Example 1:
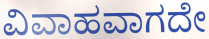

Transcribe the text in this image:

ವಿವಾಹವಾಗದೇ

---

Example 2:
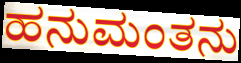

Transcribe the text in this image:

ಹನುಮಂತನು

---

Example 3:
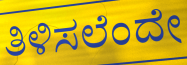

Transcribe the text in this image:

ತಿಳಿಸಲೆಂದೇ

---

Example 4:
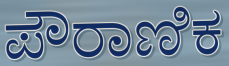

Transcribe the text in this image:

ಪೌರಾಣಿಕ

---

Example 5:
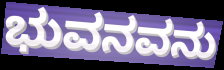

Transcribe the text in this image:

ಭುವನವನು